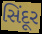
સિંદૂર